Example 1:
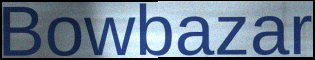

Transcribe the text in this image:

Bowbazar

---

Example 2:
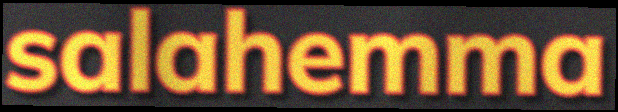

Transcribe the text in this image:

salahemma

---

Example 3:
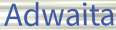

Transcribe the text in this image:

Adwaita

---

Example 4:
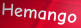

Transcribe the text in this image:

Hemango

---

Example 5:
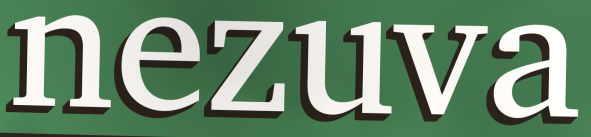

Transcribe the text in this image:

nezuva